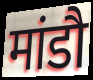
मांडौ